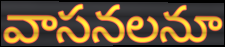
వాసనలనూ